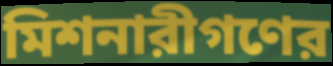
মিশনারীগণের